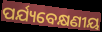
ପର୍ଯ୍ୟବେକ୍ଷଣୀୟ